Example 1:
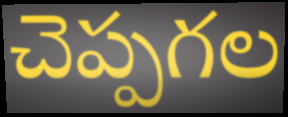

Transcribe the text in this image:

చెప్పగల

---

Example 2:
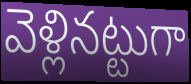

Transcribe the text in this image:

వెళ్లినట్టుగా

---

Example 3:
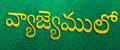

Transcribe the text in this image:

వ్యాజ్యెములో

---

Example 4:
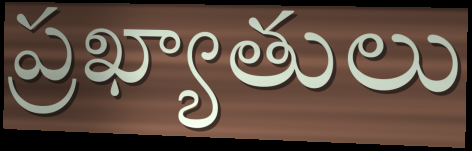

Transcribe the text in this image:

ప్రఖ్యాతులు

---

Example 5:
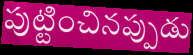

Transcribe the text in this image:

పుట్టించినప్పుడు